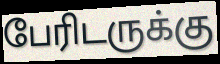
பேரிடருக்கு